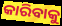
କାରିବାକୁ